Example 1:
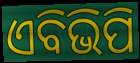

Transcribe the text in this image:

ଏବିଭିପି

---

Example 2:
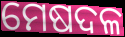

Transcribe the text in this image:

ମେଷଦଳ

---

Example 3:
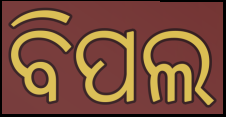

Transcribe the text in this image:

ବିପଲ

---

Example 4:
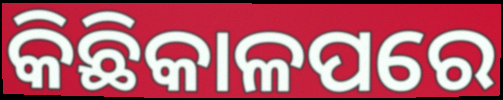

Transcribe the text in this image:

କିଛିକାଳପରେ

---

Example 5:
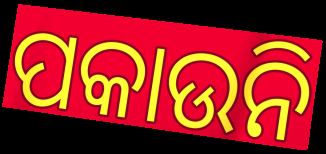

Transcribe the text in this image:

ପକାଉନି